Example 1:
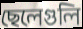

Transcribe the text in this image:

ছেলেগুলি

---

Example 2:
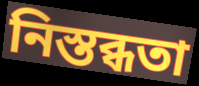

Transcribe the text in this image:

নিস্তব্ধতা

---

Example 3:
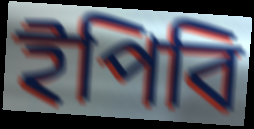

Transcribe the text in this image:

ইপিবি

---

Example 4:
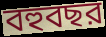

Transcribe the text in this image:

বহুবছর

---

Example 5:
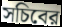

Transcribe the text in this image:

সচিবের